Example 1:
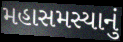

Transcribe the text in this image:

મહાસમસ્યાનું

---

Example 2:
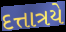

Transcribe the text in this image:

દત્તાત્રયે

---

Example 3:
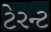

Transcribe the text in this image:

ટેરન્ટ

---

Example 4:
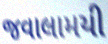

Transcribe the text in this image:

જવાલામયી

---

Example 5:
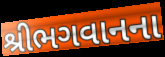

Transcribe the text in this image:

શ્રીભગવાનના